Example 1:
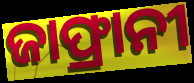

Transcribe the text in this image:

ଜାଫ୍ରାନୀ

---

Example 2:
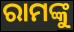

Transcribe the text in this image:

ରାମଙ୍କୁ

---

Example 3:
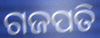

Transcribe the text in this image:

ଗଜପତି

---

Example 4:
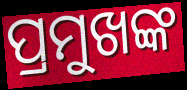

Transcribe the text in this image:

ପ୍ରମୁଖଙ୍କ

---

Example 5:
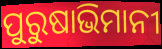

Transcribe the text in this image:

ପୁରୁଷାଭିମାନୀ